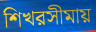
শিখরসীমায়